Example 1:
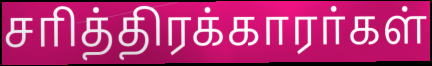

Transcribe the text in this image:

சரித்திரக்காரர்கள்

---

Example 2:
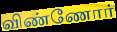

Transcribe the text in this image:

விண்ணோர்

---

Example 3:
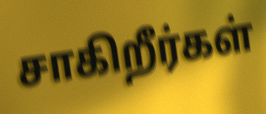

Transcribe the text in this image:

சாகிறீர்கள்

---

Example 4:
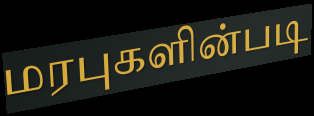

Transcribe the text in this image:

மரபுகளின்படி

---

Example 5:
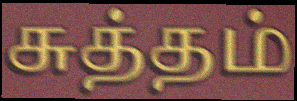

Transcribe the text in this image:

சுத்தம்